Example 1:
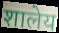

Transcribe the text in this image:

शालेय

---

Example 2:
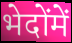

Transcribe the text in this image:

भेदोंमें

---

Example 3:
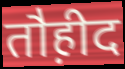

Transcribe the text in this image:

तौह़ीद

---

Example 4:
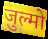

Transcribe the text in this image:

जुल्मो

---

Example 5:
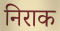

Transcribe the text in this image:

निराक